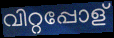
വിറ്റപ്പോള്